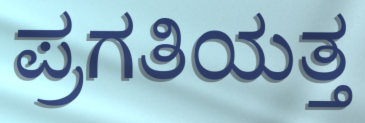
ಪ್ರಗತಿಯತ್ತ